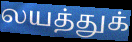
லயத்துக்